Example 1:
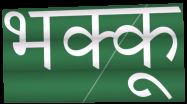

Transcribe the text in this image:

भक्कू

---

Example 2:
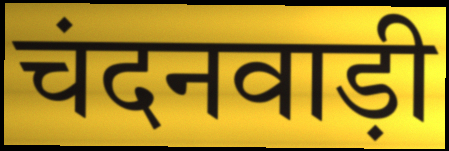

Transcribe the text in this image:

चंदनवाड़ी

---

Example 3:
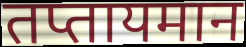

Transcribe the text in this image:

तप्तायमान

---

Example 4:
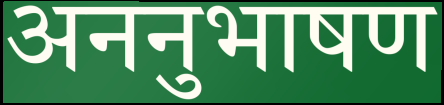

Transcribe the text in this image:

अननुभाषण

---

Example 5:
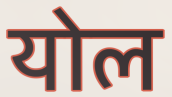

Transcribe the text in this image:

योल